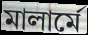
মালার্মে